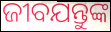
ଜୀବଯନ୍ତୁଙ୍କ